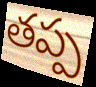
తప్ప